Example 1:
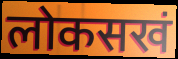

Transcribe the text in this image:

लोकसखं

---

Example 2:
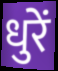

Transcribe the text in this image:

धुरें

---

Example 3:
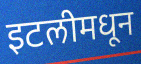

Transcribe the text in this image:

इटलीमधून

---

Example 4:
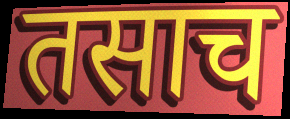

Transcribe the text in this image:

तसाच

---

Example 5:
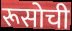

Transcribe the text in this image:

रूसोची